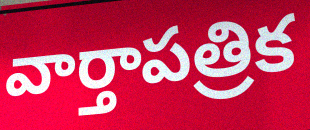
వార్తాపత్రిక